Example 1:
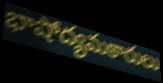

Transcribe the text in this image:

భాషోద్యమకారులు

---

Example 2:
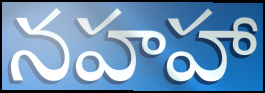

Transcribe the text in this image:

నహహా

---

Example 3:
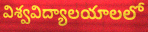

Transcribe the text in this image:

విశ్వవిద్యాలయాలలో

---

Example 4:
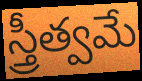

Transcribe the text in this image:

స్త్రీత్వమే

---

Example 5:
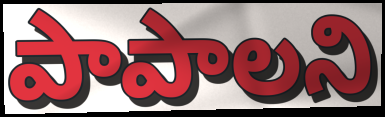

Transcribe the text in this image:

పాపాలని